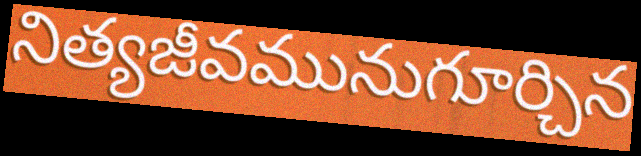
నిత్యజీవమునుగూర్చిన